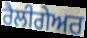
ਰੈਲੀਗੇਅਰ